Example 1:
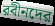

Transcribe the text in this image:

রবীনদের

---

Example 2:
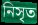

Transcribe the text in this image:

নিসৃত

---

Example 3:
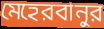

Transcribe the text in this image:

মেহেরবানুর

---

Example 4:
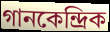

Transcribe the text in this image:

গানকেন্দ্রিক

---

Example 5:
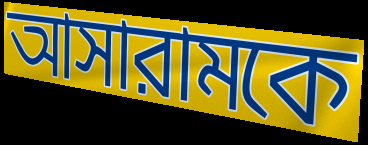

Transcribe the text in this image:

আসারামকে